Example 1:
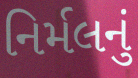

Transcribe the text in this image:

નિર્મલનું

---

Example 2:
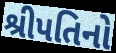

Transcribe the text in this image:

શ્રીપતિનો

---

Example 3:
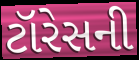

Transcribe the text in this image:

ટૉરેસની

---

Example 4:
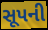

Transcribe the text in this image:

સૂપની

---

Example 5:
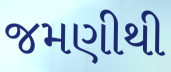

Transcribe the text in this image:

જમણીથી